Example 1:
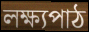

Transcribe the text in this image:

লক্ষ্যপাঠ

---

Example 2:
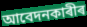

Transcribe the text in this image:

আবেদনকাৰীৰ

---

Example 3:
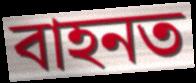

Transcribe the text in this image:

বাহনত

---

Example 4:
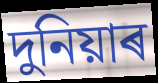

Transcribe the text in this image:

দুনিয়াৰ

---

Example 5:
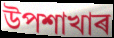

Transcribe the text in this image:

উপশাখাৰ